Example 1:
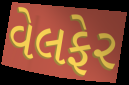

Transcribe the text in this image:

વેલફેર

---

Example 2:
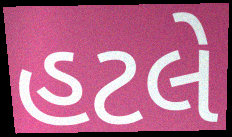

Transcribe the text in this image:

હટલે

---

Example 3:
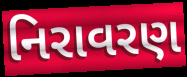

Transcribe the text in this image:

નિરાવરણ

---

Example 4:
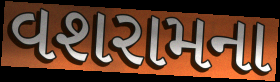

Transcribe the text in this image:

વશરામના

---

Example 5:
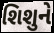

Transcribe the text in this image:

શિશુને